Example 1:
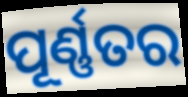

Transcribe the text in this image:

ପୂର୍ଣ୍ଣତର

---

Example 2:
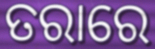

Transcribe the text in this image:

ତରାରେ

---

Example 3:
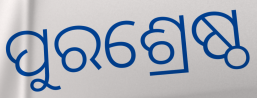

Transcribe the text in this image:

ପୁରଶ୍ରେଷ୍ଠ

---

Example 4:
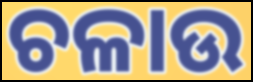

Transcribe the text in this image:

ଚଳାଉ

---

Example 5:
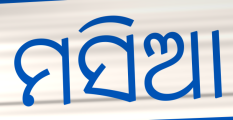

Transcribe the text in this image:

ମସିଆ